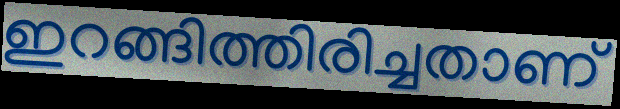
ഇറങ്ങിത്തിരിച്ചതാണ്